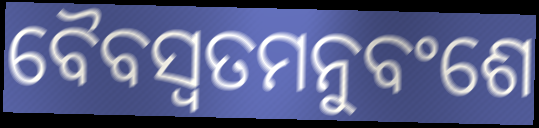
ବୈବସ୍ଵତମନୁବଂଶେ